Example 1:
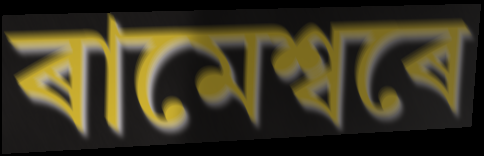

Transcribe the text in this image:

ৰামেশ্বৰে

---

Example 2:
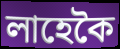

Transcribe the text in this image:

লাহেকৈ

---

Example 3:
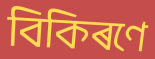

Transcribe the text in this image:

বিকিৰণে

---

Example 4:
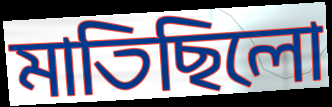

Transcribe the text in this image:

মাতিছিলো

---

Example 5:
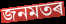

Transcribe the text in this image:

জনমতৰ